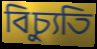
বিচ্যুতি